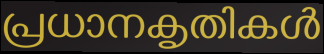
പ്രധാനകൃതികൾ